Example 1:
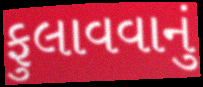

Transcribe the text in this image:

ફુલાવવાનું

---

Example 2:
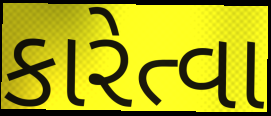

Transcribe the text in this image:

કારેત્વા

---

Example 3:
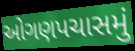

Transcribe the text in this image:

ઓગણપચાસમું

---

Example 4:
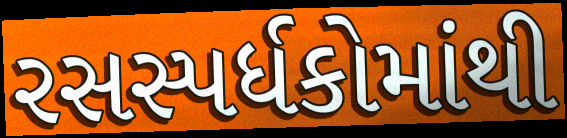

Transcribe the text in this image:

રસસ્પર્ધકોમાંથી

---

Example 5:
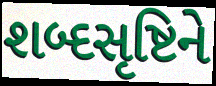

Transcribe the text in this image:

શબ્દસૃષ્ટિને